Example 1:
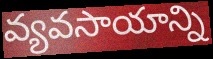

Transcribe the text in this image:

వ్యవసాయాన్ని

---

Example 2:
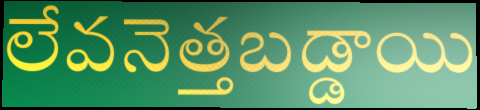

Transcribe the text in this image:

లేవనెత్తబడ్డాయి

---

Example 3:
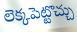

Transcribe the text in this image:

లెక్కపెట్టొచ్చు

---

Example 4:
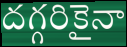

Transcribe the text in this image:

దగ్గరికైనా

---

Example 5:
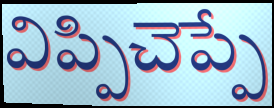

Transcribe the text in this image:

విప్పిచెప్పే